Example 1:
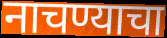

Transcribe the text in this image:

नाचण्याचा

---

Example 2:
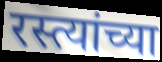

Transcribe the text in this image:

रस्त्यांच्या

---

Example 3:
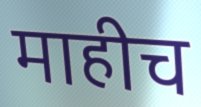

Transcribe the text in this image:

माहीच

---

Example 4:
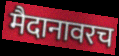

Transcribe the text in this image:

मैदानावरच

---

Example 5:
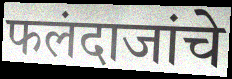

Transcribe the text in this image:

फलंदाजांचे